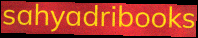
sahyadribooks